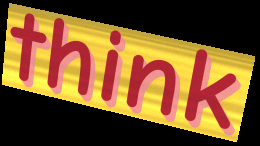
think